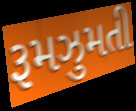
રૂમઝુમતી